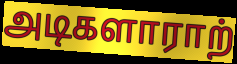
அடிகளாராற்